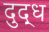
दुद्ध